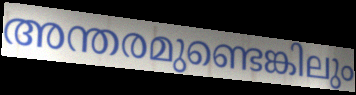
അന്തരമുണ്ടെങ്കിലും